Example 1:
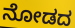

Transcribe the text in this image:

ನೋಡದ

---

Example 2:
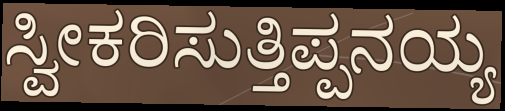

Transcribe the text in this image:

ಸ್ವೀಕರಿಸುತ್ತಿಪ್ಪನಯ್ಯ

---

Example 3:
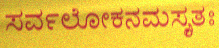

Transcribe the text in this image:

ಸರ್ವಲೋಕನಮಸ್ಕೃತಃ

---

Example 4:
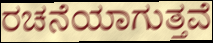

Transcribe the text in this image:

ರಚನೆಯಾಗುತ್ತವೆ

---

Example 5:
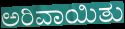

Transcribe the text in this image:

ಅರಿವಾಯಿತು